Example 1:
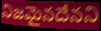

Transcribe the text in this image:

నిజమైనదేనని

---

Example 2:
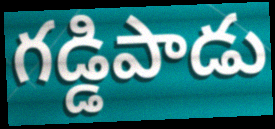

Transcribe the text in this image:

గడ్డిపాడు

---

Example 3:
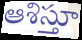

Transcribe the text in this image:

ఆశిస్తూ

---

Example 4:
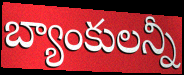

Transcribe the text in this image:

బ్యాంకులన్నీ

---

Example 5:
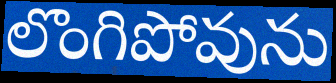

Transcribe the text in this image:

లొంగిపోవును